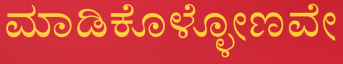
ಮಾಡಿಕೊಳ್ಳೋಣವೇ